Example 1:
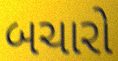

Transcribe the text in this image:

બચારો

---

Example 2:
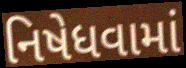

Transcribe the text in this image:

નિષેધવામાં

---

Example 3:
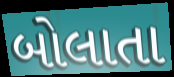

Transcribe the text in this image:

બોલાતા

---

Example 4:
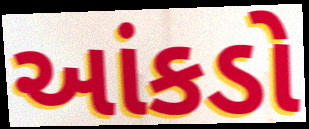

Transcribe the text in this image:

આંકડો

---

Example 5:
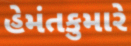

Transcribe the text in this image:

હેમંતકુમારે